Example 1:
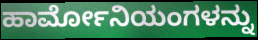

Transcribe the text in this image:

ಹಾರ್ಮೋನಿಯಂಗಳನ್ನು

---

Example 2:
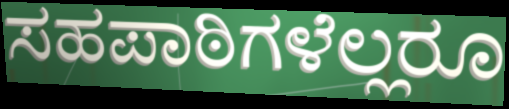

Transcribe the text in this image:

ಸಹಪಾಠಿಗಳೆಲ್ಲರೂ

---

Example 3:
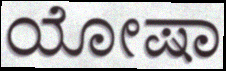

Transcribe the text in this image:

ಯೋಷಾ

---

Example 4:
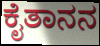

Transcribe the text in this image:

ಕೈತಾನನ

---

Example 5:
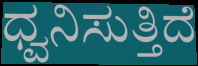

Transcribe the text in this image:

ಧ್ವನಿಸುತ್ತಿದೆ